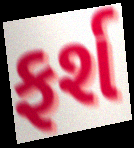
ફર્શ